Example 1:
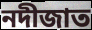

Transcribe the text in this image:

নদীজাত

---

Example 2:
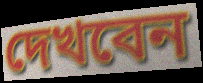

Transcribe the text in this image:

দেখবেন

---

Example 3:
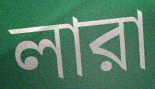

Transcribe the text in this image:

লারা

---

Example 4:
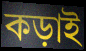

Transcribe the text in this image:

কড়াই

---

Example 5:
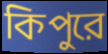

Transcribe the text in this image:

কিপুরে